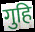
गुहि